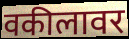
वकीलावर